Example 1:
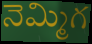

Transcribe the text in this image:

నెమ్మిగ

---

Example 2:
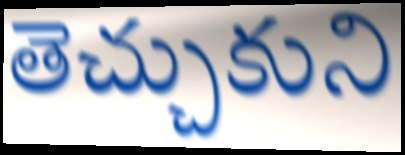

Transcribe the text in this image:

తెచ్చుకుని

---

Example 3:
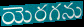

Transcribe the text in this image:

యెరగను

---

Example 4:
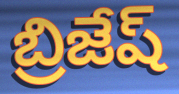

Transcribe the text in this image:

బ్రిజేష్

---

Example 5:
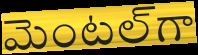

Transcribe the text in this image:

మెంటల్‌గా